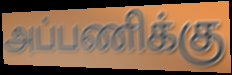
அப்பணிக்கு